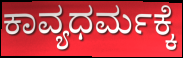
ಕಾವ್ಯಧರ್ಮಕ್ಕೆ